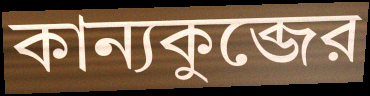
কান্যকুব্জের